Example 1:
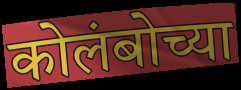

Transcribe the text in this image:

कोलंबोच्या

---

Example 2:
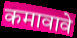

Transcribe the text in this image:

कमावावे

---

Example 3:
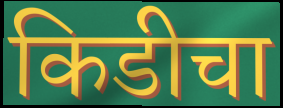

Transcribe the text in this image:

किडीचा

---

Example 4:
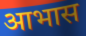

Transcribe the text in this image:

आभास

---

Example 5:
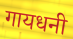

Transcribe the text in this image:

गायधनी